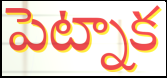
పెట్నాక